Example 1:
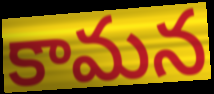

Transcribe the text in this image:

కామన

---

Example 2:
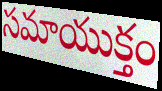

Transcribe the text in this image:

సమాయుక్తం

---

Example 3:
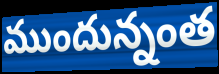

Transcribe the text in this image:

ముందున్నంత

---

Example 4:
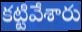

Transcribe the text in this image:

కట్టివేశారు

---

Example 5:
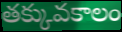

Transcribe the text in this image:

తక్కువకాలం